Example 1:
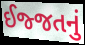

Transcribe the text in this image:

ઈજ્જતનું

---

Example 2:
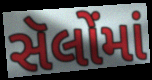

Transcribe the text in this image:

સૅલોંમાં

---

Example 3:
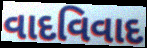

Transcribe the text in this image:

વાદવિવાદ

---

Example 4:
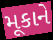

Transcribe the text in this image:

મૂકાને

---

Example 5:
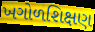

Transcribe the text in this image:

ખગોળશિક્ષણ